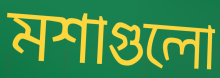
মশাগুলো